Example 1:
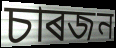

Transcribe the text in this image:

চাৰজন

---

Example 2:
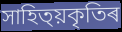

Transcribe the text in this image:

সাহিত্য়কৃতিৰ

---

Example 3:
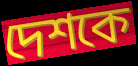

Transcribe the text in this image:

দেশকে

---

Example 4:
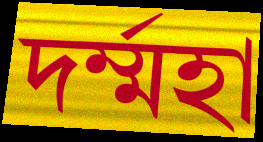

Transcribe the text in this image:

দৰ্ম্মহা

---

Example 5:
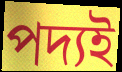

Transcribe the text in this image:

পদ্যই